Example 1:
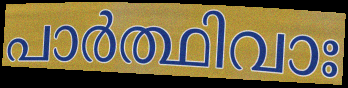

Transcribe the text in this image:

പാർത്ഥിവാഃ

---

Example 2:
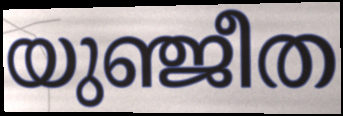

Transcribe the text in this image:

യുഞ്ജീത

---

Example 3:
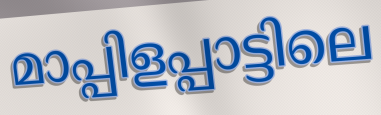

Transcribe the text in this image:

മാപ്പിളപ്പാട്ടിലെ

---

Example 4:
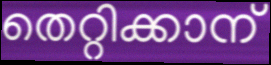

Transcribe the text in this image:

തെറ്റിക്കാന്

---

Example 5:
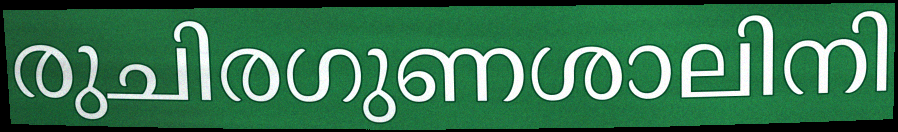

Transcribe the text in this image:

രുചിരഗുണശാലിനി